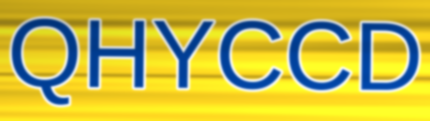
QHYCCD